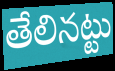
తేలినట్టు